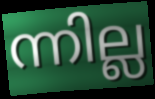
ന്നില്ല